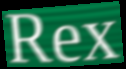
Rex